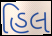
હિલ